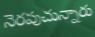
నెరపుచున్నారు